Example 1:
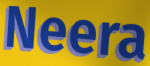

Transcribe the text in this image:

Neera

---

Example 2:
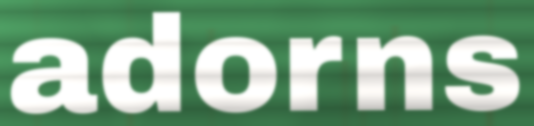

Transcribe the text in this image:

adorns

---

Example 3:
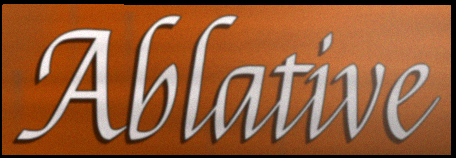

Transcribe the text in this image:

Ablative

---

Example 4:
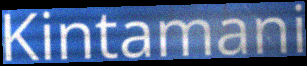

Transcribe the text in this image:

Kintamani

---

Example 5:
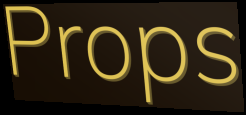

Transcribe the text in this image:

Props